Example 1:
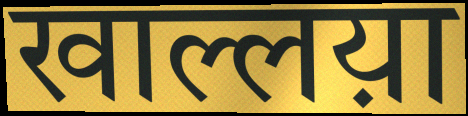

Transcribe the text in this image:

खाल्लय़ा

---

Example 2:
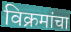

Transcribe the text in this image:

विक्रमांचा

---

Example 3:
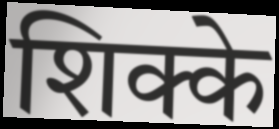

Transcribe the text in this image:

शिक्के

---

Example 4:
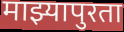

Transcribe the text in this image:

माझ्यापुरता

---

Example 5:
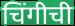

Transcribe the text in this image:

चिंगीची